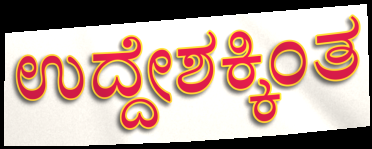
ಉದ್ದೇಶಕ್ಕಿಂತ